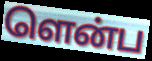
ளென்ப